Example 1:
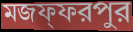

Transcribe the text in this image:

মজফ্ফরপুর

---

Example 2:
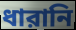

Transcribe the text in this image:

ধারানি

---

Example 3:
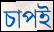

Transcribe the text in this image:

চাপই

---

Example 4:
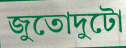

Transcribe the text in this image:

জুতোদুটো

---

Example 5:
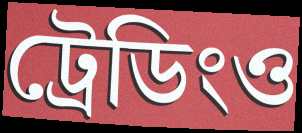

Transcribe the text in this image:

ট্রেডিংও